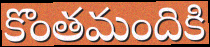
కొంతమందికి